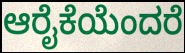
ಆರೈಕೆಯೆಂದರೆ